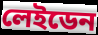
লেইডেন